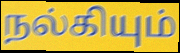
நல்கியும்